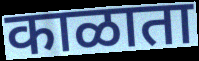
काळाता